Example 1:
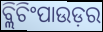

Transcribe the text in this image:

ବ୍ଲିଚିଂପାଉଡ଼ର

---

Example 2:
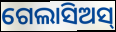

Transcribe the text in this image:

ଗେଲାସିଅସ୍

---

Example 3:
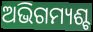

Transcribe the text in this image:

ଅଭିଗମ୍ୟଶ୍ଚ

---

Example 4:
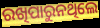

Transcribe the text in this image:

ରଖିପାରୁନଥିଲେ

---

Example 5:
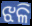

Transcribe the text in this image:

ଝଳି